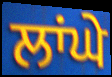
ਲਾਂਘੇ